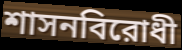
শাসনবিরোধী